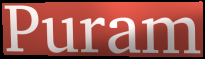
Puram